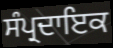
ਸੰਪ੍ਰਦਾਇਕ